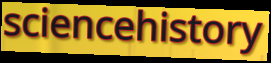
sciencehistory